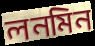
লনমিন